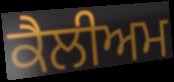
ਕੈਲੀਅਮ